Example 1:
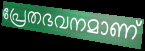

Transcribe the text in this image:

പ്രേതഭവനമാണ്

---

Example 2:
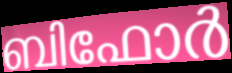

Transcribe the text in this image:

ബിഫോർ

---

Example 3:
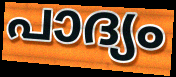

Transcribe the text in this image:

പാദ്യം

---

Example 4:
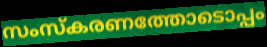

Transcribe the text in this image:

സംസ്കരണത്തോടൊപ്പം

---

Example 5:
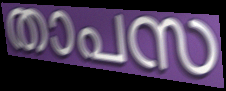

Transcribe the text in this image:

താപസ